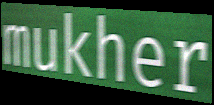
mukher